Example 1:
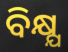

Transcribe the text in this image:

ବିକ୍ଷ୍ଯ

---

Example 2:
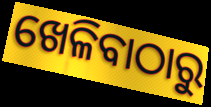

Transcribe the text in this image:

ଖେଳିବାଠାରୁ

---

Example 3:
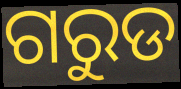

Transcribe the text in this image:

ଗରୁଡ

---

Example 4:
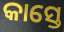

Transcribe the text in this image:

କାସ୍ତେ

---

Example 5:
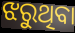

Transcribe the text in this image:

ଝରୁଥିବା